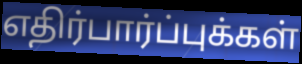
எதிர்பார்ப்புக்கள்